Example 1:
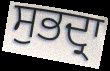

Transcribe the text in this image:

ਸੁਭਦ੍ਰਾ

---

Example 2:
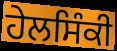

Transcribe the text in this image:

ਹੇਲਸਿੰਕੀ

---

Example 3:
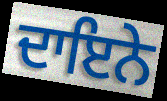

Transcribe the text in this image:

ਦਾਇਨੇ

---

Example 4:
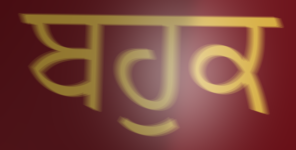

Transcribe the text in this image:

ਬਹੁਕ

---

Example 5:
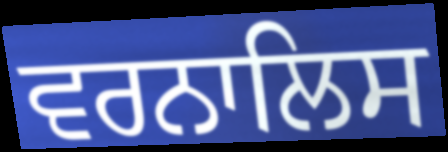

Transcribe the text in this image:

ਵਰਨਾਲਿਸ